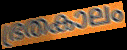
ഭ്രതകാലം